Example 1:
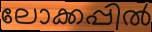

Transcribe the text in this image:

ലോക്കപ്പിൽ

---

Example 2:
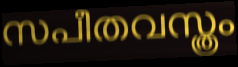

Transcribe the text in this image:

സപീതവസ്ത്രം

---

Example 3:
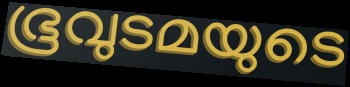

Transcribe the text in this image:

ഭൂവുടമയുടെ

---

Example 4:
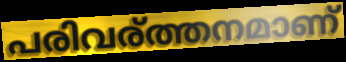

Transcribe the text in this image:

പരിവര്ത്തനമാണ്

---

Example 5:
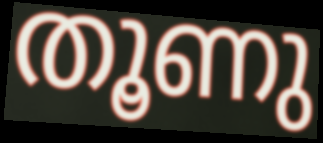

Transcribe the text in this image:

തൂണു